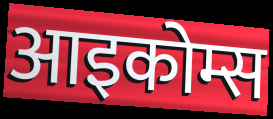
आइकोम्स